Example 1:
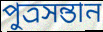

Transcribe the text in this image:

পুত্রসন্তান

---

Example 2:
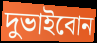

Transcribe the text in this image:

দুভাইবোন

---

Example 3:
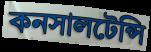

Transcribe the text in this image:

কনসালটেন্সি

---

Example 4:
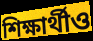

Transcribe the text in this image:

শিক্ষার্থীও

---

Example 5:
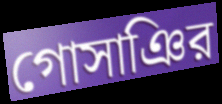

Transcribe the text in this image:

গোসাঞির